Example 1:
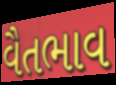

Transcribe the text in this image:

વૈતભાવ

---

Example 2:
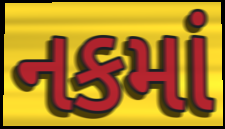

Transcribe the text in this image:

નકમાં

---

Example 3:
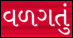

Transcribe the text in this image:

વળગતું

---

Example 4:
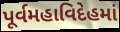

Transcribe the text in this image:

પૂર્વમહાવિદેહમાં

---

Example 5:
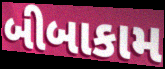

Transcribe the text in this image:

બીબાકામ